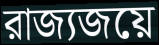
রাজ্যজয়ে